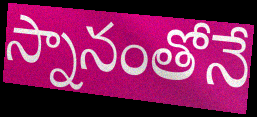
స్నానంతోనే